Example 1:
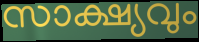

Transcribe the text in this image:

സാക്ഷ്യവും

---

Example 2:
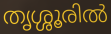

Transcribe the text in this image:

തൃശ്ശൂരിൽ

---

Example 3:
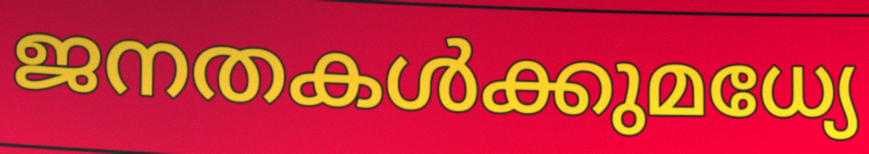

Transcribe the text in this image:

ജനതകൾക്കുമധ്യേ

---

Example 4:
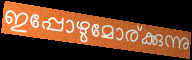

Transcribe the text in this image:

ഇപ്പോഴുമോര്ക്കുന്നു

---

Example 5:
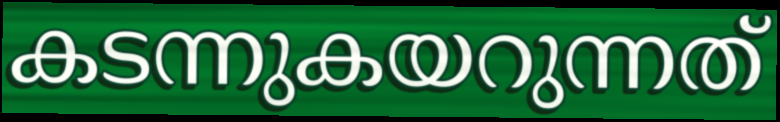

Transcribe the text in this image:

കടന്നുകയറുന്നത്